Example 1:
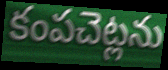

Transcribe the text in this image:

కంపచెట్లను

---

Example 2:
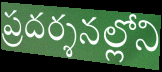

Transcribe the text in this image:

ప్రదర్శనల్లోని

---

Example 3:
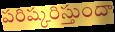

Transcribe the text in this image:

పరిష్కరిస్తుందా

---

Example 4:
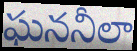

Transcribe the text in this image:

ఘననీలా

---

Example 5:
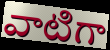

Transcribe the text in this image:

వాటిగా